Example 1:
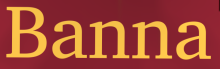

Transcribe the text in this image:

Banna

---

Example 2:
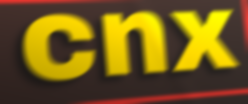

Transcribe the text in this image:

cnx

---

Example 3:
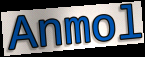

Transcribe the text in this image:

Anmol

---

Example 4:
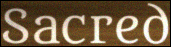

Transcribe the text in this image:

Sacred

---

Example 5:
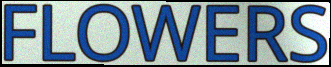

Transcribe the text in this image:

FLOWERS